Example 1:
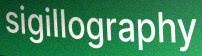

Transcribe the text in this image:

sigillography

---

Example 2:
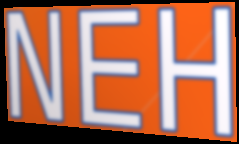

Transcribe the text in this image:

NEH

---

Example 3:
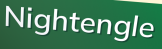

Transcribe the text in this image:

Nightengle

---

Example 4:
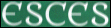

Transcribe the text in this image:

ESCES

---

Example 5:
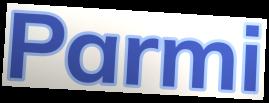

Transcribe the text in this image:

Parmi